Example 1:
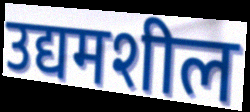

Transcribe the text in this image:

उद्यमशील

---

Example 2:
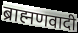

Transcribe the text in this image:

ब्राह्मणवादी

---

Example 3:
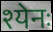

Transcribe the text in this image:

श्येनः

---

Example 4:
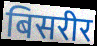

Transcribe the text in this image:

बिसरीर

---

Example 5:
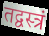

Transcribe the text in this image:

तद्वस्त्रं